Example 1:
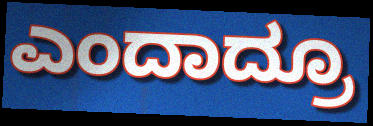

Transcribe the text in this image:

ಎಂದಾದ್ರೂ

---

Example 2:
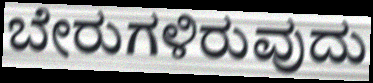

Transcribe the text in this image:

ಬೇರುಗಳಿರುವುದು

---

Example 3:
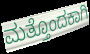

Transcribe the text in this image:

ಮತ್ತೊಂದಕಾಗಿ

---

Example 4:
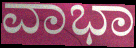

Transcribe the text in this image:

ವಾಭಾ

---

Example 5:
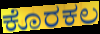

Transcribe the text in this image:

ಕೊರಕಲ